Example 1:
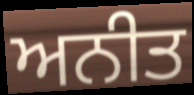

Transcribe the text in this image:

ਅਨੀਤ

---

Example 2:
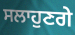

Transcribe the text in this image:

ਸਲਾਹੁਣਗੇ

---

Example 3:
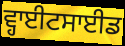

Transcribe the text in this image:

ਵ੍ਹਾਈਟਸਾਈਡ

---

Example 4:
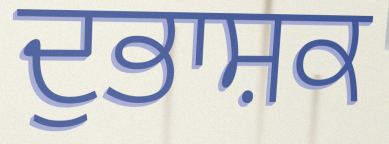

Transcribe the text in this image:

ਦੁਭਾਸ਼ਕ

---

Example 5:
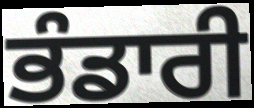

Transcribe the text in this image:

ਭੰਡਾਰੀ